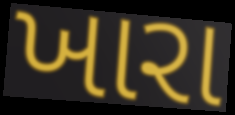
ખારા